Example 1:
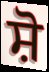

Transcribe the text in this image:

ਸ਼ੋ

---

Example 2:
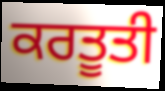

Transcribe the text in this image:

ਕਰਤੂਤੀ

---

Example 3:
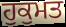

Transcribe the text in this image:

ਹੁਕੁਮਤ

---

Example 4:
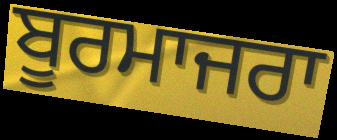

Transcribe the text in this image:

ਬੂਰਮਾਜਰਾ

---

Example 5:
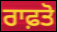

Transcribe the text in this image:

ਰਾਫ਼ਤੋ